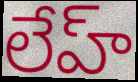
లేహ్